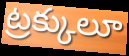
ట్రక్కులూ